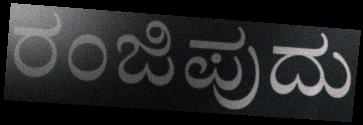
ರಂಜಿಪುದು